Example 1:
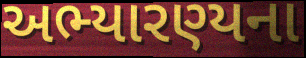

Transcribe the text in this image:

અભ્યારણ્યના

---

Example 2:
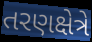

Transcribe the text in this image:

તરણક્ષેત્રે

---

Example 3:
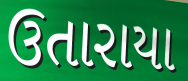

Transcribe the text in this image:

ઉતારાયા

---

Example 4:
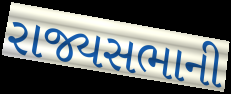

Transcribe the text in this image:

રાજ્યસભાની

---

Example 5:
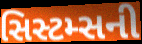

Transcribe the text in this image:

સિસ્ટમ્સની